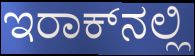
ಇರಾಕ್‌ನಲ್ಲಿ